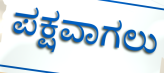
ಪಕ್ಷವಾಗಲು